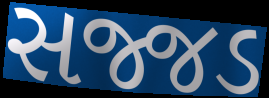
સજ્જડ